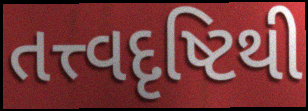
તત્ત્વદૃષ્ટિથી